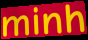
minh